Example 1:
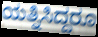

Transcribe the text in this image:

ಯತ್ನಿಸಿದ್ದರೂ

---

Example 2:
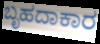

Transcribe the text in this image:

ಬೃಹದಾಕಾರ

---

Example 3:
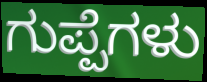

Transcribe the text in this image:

ಗುಪ್ಪೆಗಳು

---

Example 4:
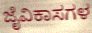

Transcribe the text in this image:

ಜೈವಿಕಾಸಗಳ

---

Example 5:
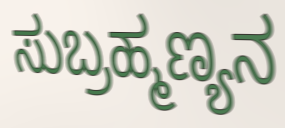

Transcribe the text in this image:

ಸುಬ್ರಹ್ಮಣ್ಯನ